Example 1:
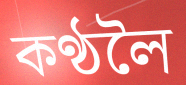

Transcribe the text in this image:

কণ্ঠলৈ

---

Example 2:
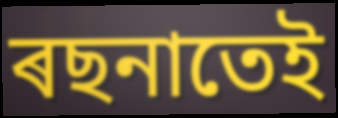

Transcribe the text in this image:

ৰছনাতেই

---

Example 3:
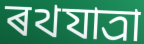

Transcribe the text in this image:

ৰথযাত্ৰা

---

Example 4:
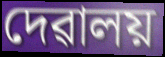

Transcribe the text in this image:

দেৱালয়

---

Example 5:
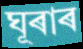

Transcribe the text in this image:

ঘূৰাৰ